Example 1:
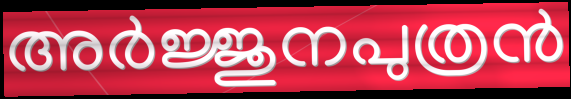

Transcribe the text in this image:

അർജ്ജുനപുത്രൻ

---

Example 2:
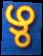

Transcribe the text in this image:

ഴു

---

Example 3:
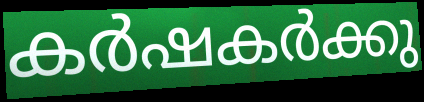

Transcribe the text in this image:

കർഷകർക്കു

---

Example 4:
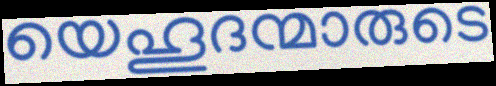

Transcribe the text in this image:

യെഹൂദന്മാരുടെ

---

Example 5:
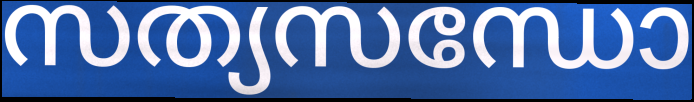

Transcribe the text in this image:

സത്യസന്ധോ